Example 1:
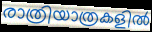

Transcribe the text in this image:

രാത്രിയാത്രകളിൽ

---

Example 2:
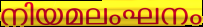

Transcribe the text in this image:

നിയമലംഘനം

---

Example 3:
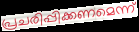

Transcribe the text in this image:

പ്രചരിപ്പിക്കണമെന്ന്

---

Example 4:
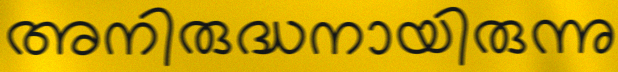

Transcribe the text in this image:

അനിരുദ്ധനായിരുന്നു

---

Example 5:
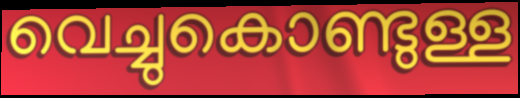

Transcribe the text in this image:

വെച്ചുകൊണ്ടുള്ള